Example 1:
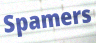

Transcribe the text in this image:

Spamers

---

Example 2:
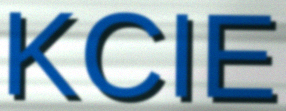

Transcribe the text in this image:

KCIE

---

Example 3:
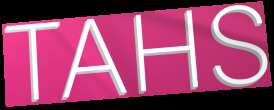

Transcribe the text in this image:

TAHS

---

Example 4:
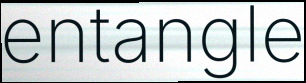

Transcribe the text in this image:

entangle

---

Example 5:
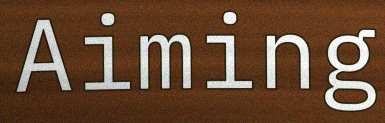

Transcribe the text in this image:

Aiming